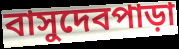
বাসুদেবপাড়া